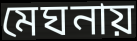
মেঘনায়